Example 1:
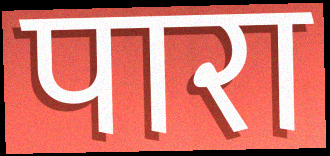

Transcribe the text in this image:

पारा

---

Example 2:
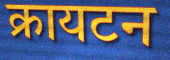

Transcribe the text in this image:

क्रायटन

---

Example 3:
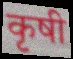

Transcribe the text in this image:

कृषी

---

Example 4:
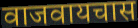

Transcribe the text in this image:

वाजवायचास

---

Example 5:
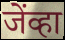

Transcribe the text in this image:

जेंव्हा